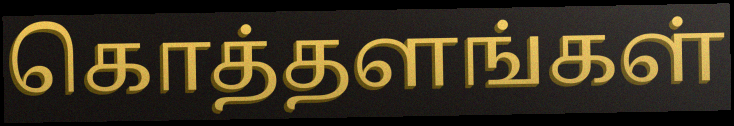
கொத்தளங்கள்